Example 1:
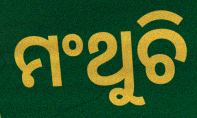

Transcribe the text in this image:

ମଂଥୁଚି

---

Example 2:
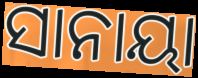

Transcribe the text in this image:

ସାନାୟା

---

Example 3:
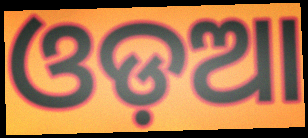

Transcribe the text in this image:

ଓଡ଼ଆ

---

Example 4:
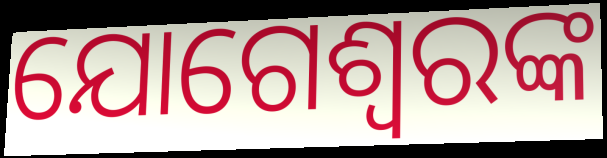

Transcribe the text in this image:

ଯୋଗେଶ୍ୱରଙ୍କ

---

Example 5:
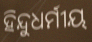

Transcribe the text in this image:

ହିନ୍ଦୁଧର୍ମୀୟ